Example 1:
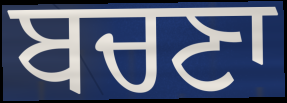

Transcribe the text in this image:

ਬਚਣਾ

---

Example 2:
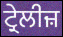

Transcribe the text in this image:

ਟ੍ਰੇਲੀਜ਼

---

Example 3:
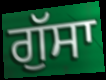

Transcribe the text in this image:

ਗੁੱਸਾ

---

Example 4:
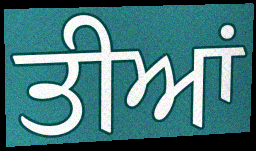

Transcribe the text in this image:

ਤੀਆਂ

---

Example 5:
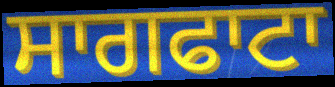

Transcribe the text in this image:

ਸਾਗਫਾਟਾ